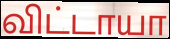
விட்டாயா